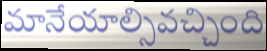
మానేయాల్సివచ్చింది